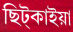
ছিট্কাইয়া